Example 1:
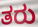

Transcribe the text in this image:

ತರು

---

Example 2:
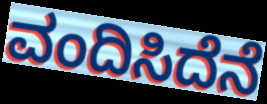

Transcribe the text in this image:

ವಂದಿಸಿದೆನೆ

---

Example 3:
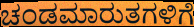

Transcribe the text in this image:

ಚಂಡಮಾರುತಗಳಿಗೆ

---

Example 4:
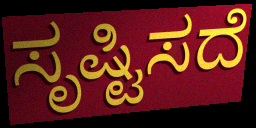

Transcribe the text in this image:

ಸೃಷ್ಟಿಸದೆ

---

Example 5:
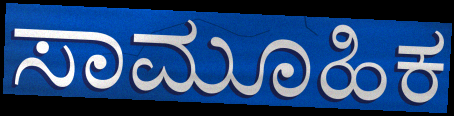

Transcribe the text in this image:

ಸಾಮೂಹಿಕ